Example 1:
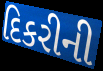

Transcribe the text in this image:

દિકરીની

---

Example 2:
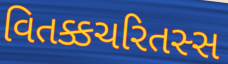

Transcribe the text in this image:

વિતક્કચરિતસ્સ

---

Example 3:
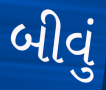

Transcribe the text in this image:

બીવું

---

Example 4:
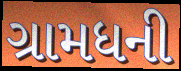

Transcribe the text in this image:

ગ્રામધની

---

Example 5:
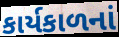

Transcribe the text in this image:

કાર્યકાળનાં